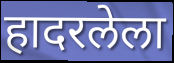
हादरलेला